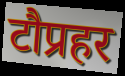
टौप्रहर